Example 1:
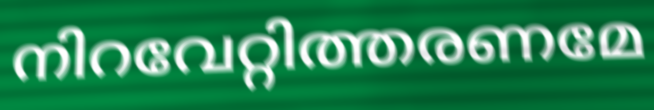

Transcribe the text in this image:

നിറവേറ്റിത്തരണമേ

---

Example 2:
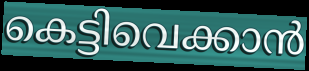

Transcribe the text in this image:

കെട്ടിവെക്കാൻ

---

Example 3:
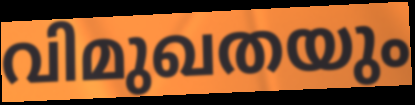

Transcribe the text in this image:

വിമുഖതയും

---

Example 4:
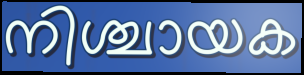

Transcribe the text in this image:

നിശ്ചായക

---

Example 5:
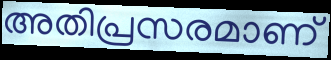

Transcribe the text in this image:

അതിപ്രസരമാണ്